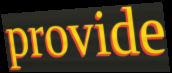
provide